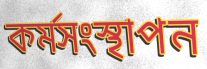
কৰ্মসংস্থাপন